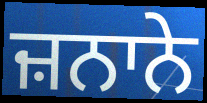
ਜ਼ਨਾਨੇ